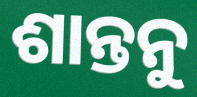
ଶାନ୍ତନୁ